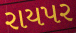
રાયપર